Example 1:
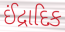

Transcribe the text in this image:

ઈંદ્રાદિક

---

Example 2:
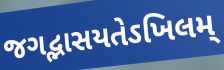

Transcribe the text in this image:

જગદ્ભાસયતેઽખિલમ્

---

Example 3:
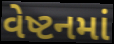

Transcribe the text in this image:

વેષ્ટનમાં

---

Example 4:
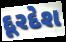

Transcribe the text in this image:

દૂરદેશ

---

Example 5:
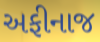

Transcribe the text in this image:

અફીનાજ